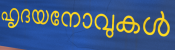
ഹൃദയനോവുകൾ